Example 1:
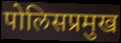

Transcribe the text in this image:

पोलिसप्रमुख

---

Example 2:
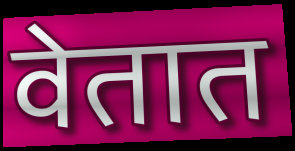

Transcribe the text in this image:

वेतात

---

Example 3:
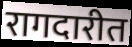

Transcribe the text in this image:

रागदारीत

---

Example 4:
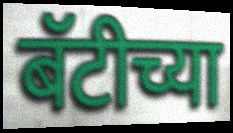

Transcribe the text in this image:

बॅटीच्या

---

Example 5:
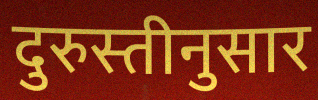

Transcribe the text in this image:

दुरुस्तीनुसार